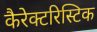
कैरेक्टरिस्टिक